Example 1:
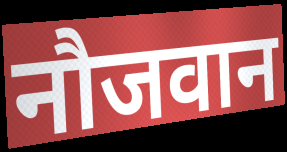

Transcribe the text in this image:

नौजवान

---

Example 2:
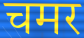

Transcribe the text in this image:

चमर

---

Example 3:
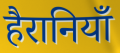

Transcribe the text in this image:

हैरानियाँ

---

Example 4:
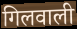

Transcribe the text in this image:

गिलवाली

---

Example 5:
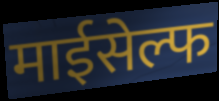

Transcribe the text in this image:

माईसेल्फ